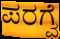
ಪರಗ್ವೆ